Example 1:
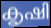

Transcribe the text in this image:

കൃഷി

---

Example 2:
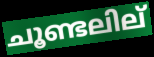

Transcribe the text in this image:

ചൂണ്ടലില്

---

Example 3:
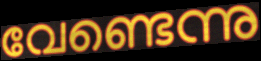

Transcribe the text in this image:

വേണ്ടെന്നു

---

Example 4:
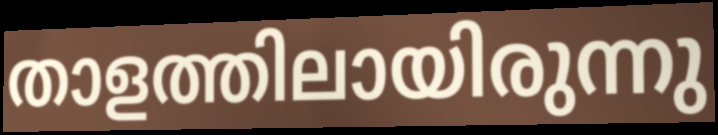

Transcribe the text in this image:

താളത്തിലായിരുന്നു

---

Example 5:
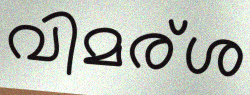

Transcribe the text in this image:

വിമര്ശ